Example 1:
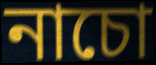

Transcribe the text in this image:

নাচো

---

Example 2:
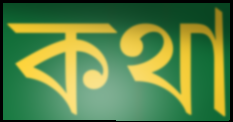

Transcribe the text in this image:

কথা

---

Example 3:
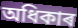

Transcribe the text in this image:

অধিকাৰ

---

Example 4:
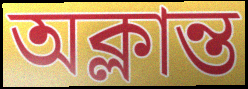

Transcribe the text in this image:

অক্লান্ত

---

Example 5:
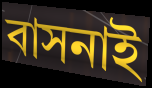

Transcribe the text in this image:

বাসনাই